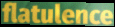
flatulence